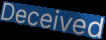
Deceived